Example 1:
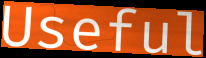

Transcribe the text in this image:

Useful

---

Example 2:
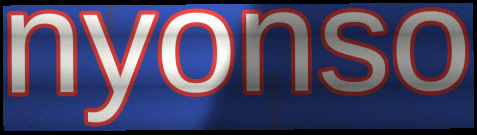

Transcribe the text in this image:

nyonso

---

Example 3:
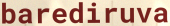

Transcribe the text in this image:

barediruva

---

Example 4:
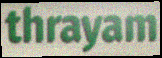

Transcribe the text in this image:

thrayam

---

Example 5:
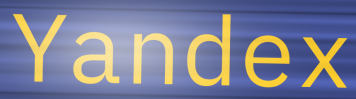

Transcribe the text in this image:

Yandex